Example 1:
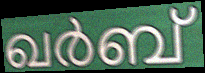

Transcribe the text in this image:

ഖർബ്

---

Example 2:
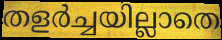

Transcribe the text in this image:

തളർച്ചയില്ലാതെ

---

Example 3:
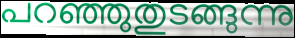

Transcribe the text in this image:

പറഞ്ഞുതുടങ്ങുന്നു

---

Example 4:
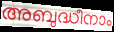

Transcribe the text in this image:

അബുദ്ധീനാം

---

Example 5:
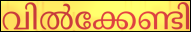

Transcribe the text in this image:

വിൽക്കേണ്ടി